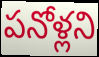
పనోళ్లని